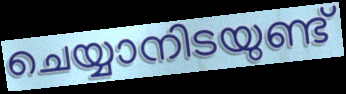
ചെയ്യാനിടയുണ്ട്